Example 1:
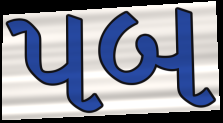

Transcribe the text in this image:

પબ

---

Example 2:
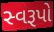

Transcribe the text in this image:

સ્વરૂપો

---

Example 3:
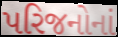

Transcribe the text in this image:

પરિજનોનાં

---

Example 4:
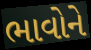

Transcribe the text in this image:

ભાવોને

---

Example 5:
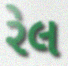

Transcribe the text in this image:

રેલ